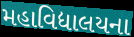
મહાવિદ્યાલયના